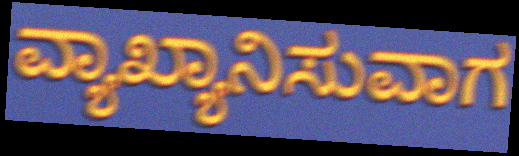
ವ್ಯಾಖ್ಯಾನಿಸುವಾಗ